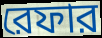
রেফার